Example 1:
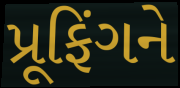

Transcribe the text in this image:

પ્રૂફિંગને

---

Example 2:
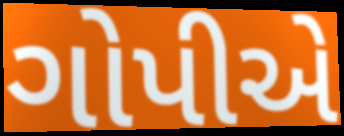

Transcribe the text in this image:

ગોપીએ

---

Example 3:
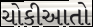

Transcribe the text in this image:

ચોકીઆતો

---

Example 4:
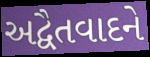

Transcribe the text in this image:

અદ્વૈતવાદને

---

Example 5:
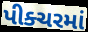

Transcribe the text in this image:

પીક્ચરમાં